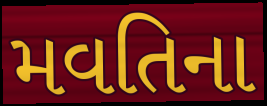
મવતિના